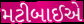
મટીબાઈએ